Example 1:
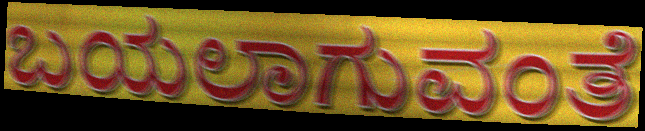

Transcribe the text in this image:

ಬಯಲಾಗುವಂತೆ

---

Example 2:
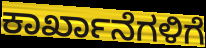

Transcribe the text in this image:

ಕಾರ್ಖಾನೆಗಳಿಗೆ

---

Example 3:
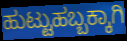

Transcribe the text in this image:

ಹುಟ್ಟುಹಬ್ಬಕ್ಕಾಗಿ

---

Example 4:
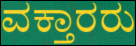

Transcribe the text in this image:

ವಕ್ತಾರರು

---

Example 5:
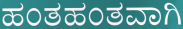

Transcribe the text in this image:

ಹಂತಹಂತವಾಗಿ